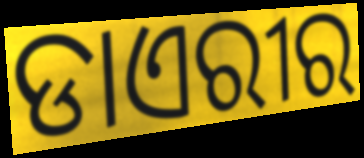
ଡାଏରୀର